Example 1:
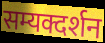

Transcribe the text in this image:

सम्यक्दर्शन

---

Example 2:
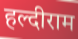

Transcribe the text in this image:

हल्दीराम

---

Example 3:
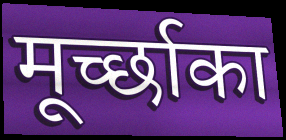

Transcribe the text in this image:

मूर्च्छाका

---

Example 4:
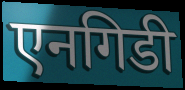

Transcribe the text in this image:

एनगिडी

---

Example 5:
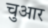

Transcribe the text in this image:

चुआर